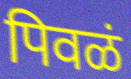
पिवळं